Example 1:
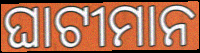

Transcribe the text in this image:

ଘାଟୀମାନ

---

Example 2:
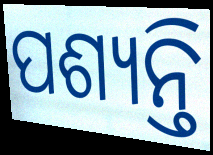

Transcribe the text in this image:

ପଶ୍ୟନ୍ତି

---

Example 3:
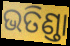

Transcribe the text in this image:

ଭତିଣ୍ଡା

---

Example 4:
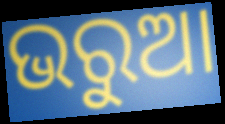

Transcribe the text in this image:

ଭରୁଆ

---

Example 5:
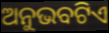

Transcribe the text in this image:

ଅନୁଭବଟିଏ